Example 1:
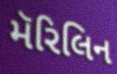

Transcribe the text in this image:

મૅરિલિન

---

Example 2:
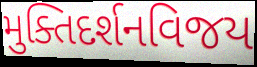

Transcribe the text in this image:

મુક્તિદર્શનવિજય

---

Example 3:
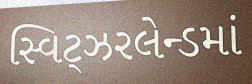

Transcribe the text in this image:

સ્વિટ્ઝરલેન્ડમાં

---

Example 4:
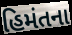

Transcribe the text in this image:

હિમંતના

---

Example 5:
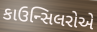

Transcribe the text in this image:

કાઉન્સિલરોએ